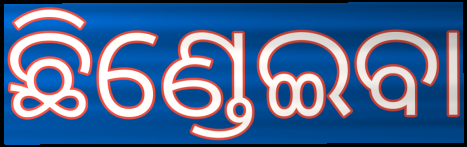
ଛିଣ୍ଡେଇବା